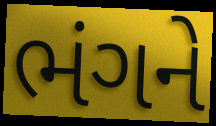
ભંગને